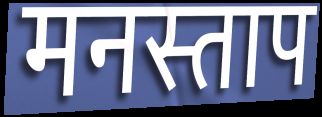
मनस्ताप